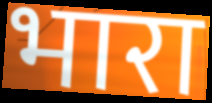
भारा